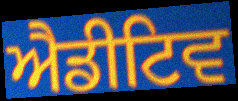
ਐਡੀਟਿਵ